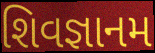
શિવજ્ઞાનમ